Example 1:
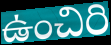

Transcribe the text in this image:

ఉంచిరి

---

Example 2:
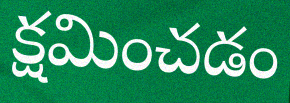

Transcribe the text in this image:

క్షమించడం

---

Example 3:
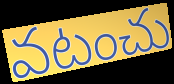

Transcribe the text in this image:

వటంచు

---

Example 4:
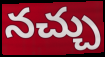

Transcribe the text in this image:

నచ్చు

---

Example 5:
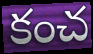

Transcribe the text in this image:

కంచ